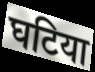
घटिया